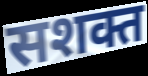
सशक्त